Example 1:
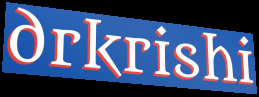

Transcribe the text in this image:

drkrishi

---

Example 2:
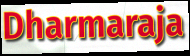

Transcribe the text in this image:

Dharmaraja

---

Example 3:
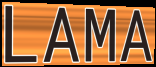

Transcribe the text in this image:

LAMA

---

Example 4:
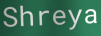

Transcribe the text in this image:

Shreya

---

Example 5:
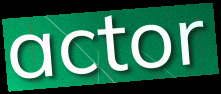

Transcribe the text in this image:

actor